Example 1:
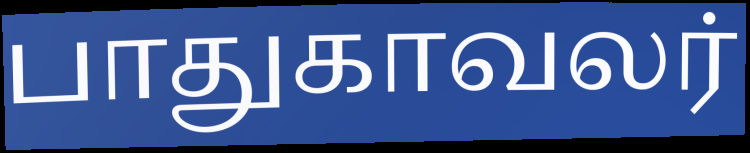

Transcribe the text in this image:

பாதுகாவலர்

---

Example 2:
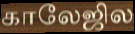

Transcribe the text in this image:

காலேஜில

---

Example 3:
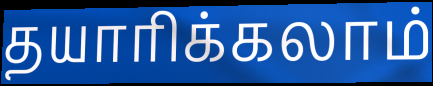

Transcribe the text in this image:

தயாரிக்கலாம்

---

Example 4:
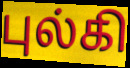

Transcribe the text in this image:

புல்கி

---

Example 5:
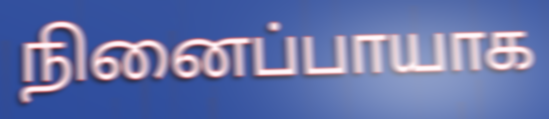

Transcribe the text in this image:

நினைப்பாயாக